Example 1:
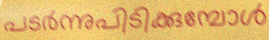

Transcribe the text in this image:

പടർന്നുപിടിക്കുമ്പോൾ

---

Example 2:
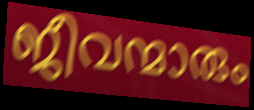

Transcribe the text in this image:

ജീവന്മാരും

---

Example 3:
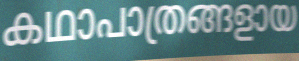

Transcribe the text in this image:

കഥാപാത്രങ്ങളായ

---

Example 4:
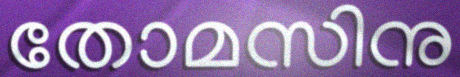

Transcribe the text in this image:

തോമസിനു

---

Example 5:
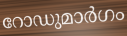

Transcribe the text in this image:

റോഡുമാർഗം